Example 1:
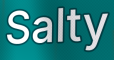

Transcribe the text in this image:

Salty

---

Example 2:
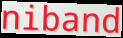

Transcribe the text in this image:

niband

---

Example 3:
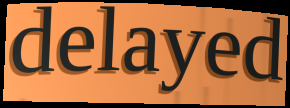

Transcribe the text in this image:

delayed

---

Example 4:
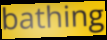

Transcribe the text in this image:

bathing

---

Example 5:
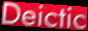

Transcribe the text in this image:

Deictic